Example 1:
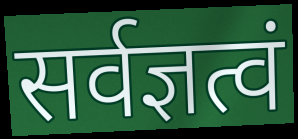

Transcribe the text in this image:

सर्वज्ञत्वं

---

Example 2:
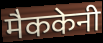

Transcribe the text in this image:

मैककेनी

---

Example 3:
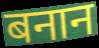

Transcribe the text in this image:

बनान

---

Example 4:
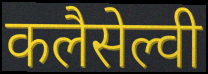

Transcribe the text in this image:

कलैसेल्वी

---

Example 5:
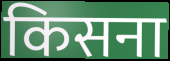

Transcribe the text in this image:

किसना